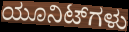
ಯೂನಿಟ್‌ಗಳು